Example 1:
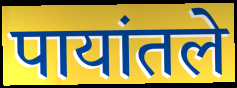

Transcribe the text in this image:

पायांतले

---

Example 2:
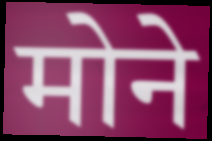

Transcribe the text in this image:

मोने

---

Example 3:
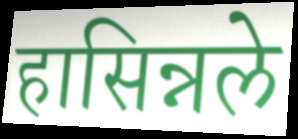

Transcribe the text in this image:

हासिन्नले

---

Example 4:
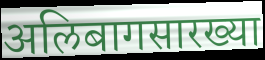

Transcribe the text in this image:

अलिबागसारख्या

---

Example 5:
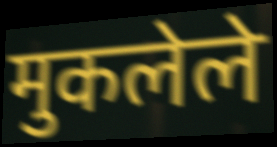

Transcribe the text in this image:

मुकलेले